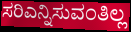
ಸರಿಎನ್ನಿಸುವಂತಿಲ್ಲ